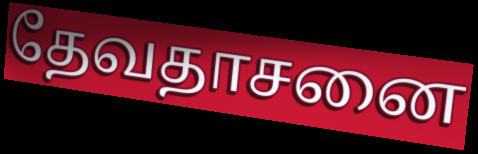
தேவதாசனை